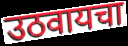
उठवायचा